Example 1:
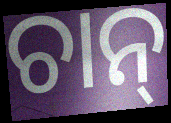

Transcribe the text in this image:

ଚାନ୍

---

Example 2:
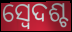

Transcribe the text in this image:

ସ୍ବେଦଶ୍ଚ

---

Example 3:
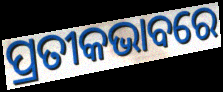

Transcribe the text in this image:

ପ୍ରତୀକଭାବରେ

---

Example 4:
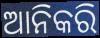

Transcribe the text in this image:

ଆନିକରି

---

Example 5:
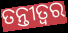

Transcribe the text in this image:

ତନ୍ତୀତ୍ୱର